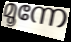
മൂന്നേ